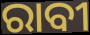
ରାବୀ